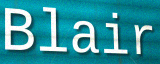
Blair